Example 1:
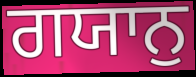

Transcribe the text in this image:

ਗਯਾਨੁ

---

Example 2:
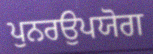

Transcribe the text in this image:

ਪੁਨਰਉਪਯੋਗ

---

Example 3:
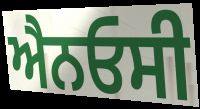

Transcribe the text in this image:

ਐਨਓਸੀ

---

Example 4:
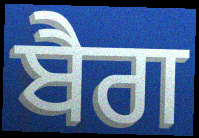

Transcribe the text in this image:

ਬੈਗ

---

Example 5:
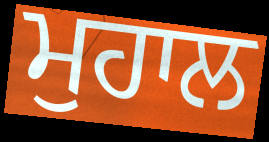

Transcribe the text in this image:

ਮੁਹਾਲ